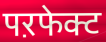
पऱफेक्ट